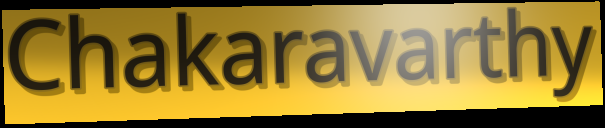
Chakaravarthy